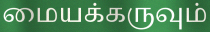
மையக்கருவும்